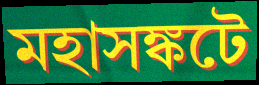
মহাসঙ্কটে